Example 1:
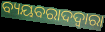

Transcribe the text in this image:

ବ୍ୟୟବରାଦଦ୍ଵାରା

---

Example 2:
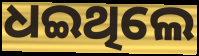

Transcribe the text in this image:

ଧଇଥିଲେ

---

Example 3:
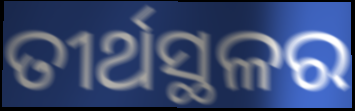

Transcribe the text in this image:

ତୀର୍ଥସ୍ଥଳର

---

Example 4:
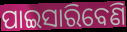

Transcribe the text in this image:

ପାଇସାରିବେଣି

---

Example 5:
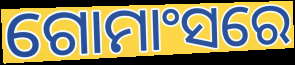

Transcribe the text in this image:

ଗୋମାଂସରେ